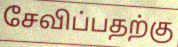
சேவிப்பதற்கு